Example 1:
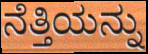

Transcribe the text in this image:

ನೆತ್ತಿಯನ್ನು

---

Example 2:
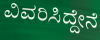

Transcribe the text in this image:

ವಿವರಿಸಿದ್ದೇನೆ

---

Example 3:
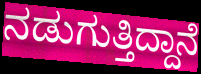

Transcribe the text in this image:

ನಡುಗುತ್ತಿದ್ದಾನೆ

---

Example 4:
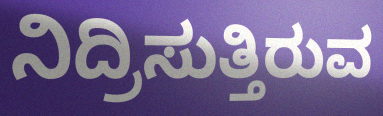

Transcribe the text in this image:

ನಿದ್ರಿಸುತ್ತಿರುವ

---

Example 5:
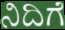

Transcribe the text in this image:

ನಿದಿಗೆ